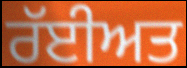
ਰੱਈਅਤ